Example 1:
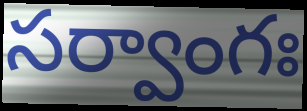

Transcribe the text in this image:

సర్వాంగః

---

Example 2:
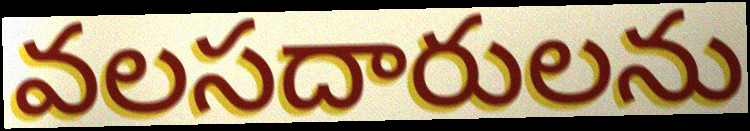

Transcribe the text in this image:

వలసదారులను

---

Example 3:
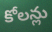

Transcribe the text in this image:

కోలన్లు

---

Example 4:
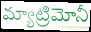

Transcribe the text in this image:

మ్యాట్రిమోనీ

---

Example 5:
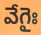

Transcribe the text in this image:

వేగైః